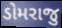
ડોમરાજુ